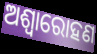
ଅଶ୍ୱାରୋହଣ